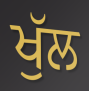
ਖੁੱਲ